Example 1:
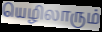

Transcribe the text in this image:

யெழிலாரும்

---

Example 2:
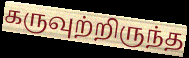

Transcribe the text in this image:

கருவுற்றிருந்த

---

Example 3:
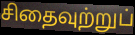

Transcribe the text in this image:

சிதைவுற்றுப்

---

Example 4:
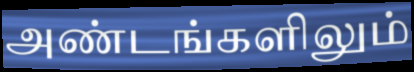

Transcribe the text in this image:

அண்டங்களிலும்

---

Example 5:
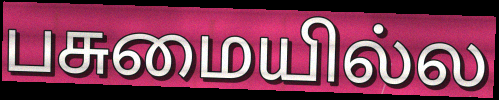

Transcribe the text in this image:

பசுமையில்ல